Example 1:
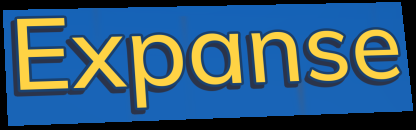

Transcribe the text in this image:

Expanse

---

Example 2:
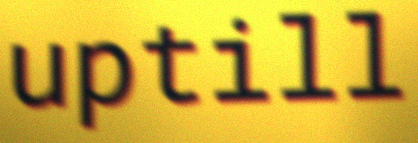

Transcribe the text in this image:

uptill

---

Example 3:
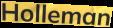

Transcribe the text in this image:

Holleman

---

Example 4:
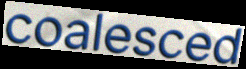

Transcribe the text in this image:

coalesced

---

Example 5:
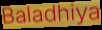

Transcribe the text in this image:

Baladhiya